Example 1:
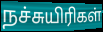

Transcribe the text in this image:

நச்சுயிரிகள்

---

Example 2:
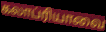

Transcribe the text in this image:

கலாப்ரியாவை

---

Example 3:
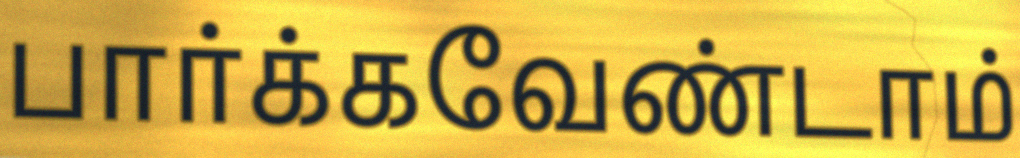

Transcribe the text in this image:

பார்க்கவேண்டாம்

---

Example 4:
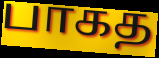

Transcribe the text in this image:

பாகத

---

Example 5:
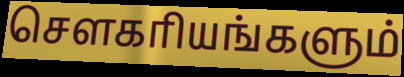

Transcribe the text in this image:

சௌகரியங்களும்